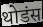
थोडंस